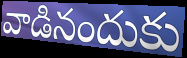
వాడినందుకు